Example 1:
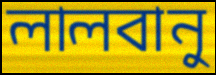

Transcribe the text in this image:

লালবানু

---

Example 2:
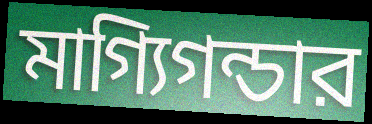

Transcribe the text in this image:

মাগ্যিগন্ডার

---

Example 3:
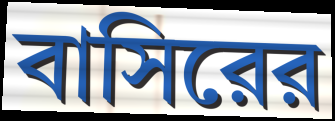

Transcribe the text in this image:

বাসিরের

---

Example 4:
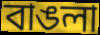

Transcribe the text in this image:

বাঙলা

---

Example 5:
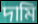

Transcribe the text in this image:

দামি